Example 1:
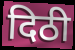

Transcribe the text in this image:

दिठी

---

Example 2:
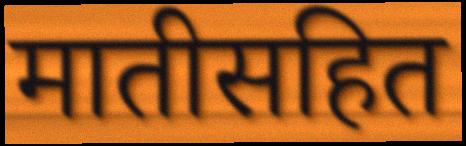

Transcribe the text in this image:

मातीसहित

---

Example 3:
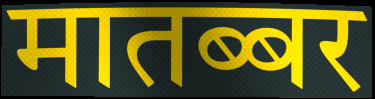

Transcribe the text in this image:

मातब्बर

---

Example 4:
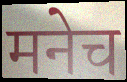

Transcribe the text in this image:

मनेच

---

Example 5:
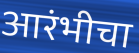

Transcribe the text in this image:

आरंभीचा